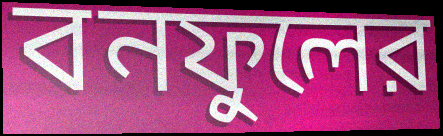
বনফুলের